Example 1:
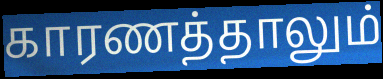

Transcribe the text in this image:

காரணத்தாலும்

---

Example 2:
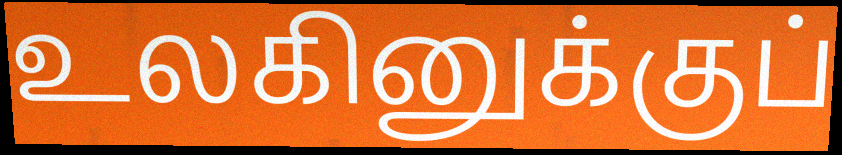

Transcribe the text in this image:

உலகினுக்குப்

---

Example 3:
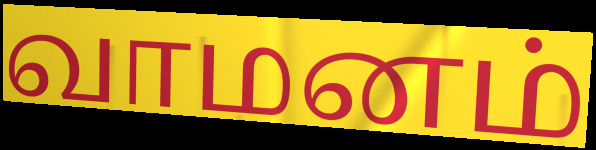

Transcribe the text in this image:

வாமனம்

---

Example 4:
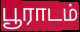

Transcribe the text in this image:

பூராடம்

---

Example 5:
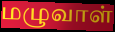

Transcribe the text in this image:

மழுவாள்